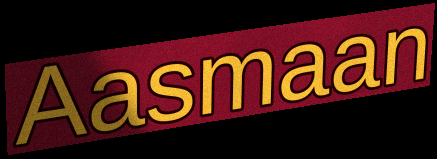
Aasmaan